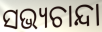
ସଭ୍ୟଚାନ୍ଦା